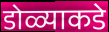
डोळ्याकडे